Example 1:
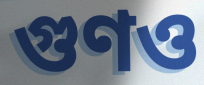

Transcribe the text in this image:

গুণও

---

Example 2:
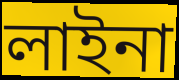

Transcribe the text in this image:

লাইনা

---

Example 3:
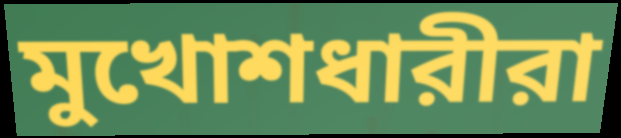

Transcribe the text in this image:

মুখোশধারীরা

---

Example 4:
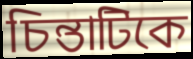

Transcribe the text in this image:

চিন্তাটিকে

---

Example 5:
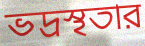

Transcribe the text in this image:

ভদ্রস্থতার